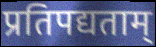
प्रतिपद्यताम्